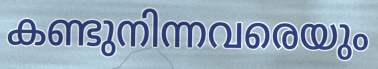
കണ്ടുനിന്നവരെയും